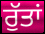
ਰੁੱਤਾਂ